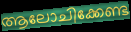
ആലോചിക്കേണ്ട